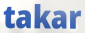
takar